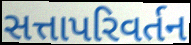
સત્તાપરિવર્તન